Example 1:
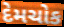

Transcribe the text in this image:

દેમચોક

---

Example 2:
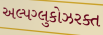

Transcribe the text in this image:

અલ્પગ્લુકોઝરક્ત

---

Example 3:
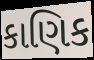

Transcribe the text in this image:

કાણિક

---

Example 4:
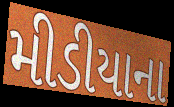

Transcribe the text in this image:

મીડીયાના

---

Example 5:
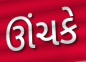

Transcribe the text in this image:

ઊંચકે